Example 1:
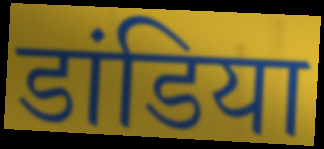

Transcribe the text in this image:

डांडिया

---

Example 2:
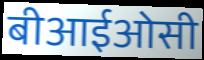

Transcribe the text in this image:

बीआईओसी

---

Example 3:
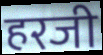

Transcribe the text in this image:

हरजी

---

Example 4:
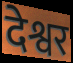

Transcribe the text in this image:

देश्वर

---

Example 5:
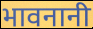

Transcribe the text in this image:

भावनानी